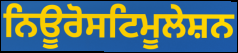
ਨਿਊਰੋਸਟਿਮੂਲੇਸ਼ਨ